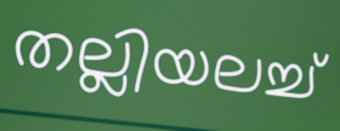
തല്ലിയലച്ച്